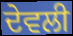
ਦੇਵਲੀ